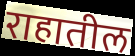
राहातील